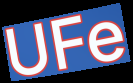
UFe